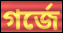
গর্জে